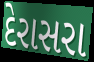
દેરાસરા